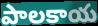
పాలకాయ